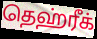
தெஹ்ரீக்